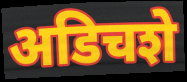
अडिचशे